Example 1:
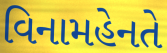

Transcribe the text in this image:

વિનામહેનતે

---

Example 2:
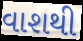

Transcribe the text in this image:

વાશથી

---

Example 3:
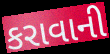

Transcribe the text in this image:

કરાવાની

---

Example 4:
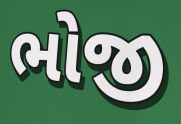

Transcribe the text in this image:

ભોજી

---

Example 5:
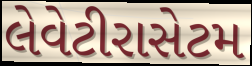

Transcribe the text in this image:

લેવેટીરાસેટમ